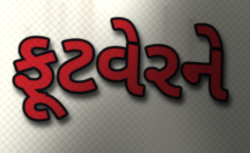
ફૂટવેરને